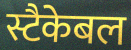
स्टैकेबल